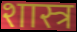
शास्त्र